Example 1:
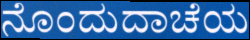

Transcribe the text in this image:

ನೊಂದುದಾಚೆಯ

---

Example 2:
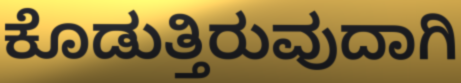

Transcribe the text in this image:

ಕೊಡುತ್ತಿರುವುದಾಗಿ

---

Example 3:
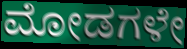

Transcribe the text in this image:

ಮೋಡಗಳೇ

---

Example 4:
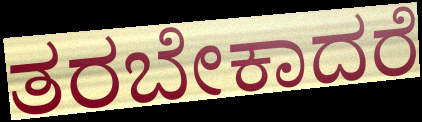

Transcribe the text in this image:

ತರಬೇಕಾದರೆ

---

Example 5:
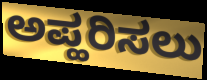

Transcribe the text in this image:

ಅಪ್ಹರಿಸಲು